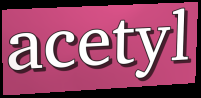
acetyl